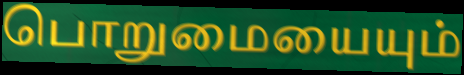
பொறுமையையும்